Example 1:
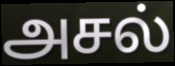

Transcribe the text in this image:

அசல்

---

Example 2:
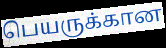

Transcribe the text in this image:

பெயருக்கான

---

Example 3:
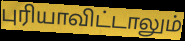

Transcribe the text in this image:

புரியாவிட்டாலும்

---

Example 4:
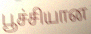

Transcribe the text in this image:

பூச்சியான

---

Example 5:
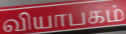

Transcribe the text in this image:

வியாபகம்